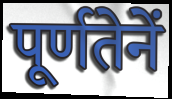
पूर्णतेनें